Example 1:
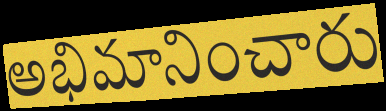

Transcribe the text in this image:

అభిమానించారు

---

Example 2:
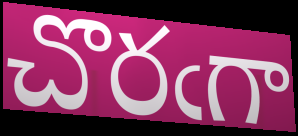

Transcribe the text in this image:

చొరఁగా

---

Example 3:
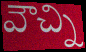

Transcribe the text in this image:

వౌచ్ని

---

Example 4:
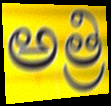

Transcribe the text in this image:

అత్రి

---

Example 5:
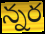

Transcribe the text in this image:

న్నర